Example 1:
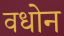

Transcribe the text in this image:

वधोन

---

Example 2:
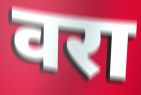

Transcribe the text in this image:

वरा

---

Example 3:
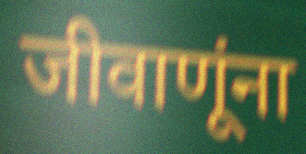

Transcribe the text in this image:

जीवाणूंना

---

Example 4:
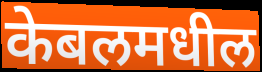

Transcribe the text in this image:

केबलमधील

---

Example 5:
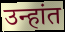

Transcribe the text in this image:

उन्हांत